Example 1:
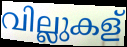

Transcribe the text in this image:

വില്ലുകള്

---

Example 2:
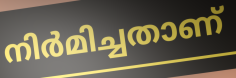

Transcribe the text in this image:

നിർമിച്ചതാണ്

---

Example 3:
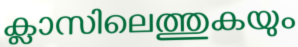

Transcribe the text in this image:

ക്ലാസിലെത്തുകയും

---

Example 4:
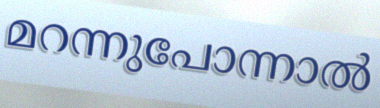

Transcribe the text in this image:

മറന്നുപോന്നാൽ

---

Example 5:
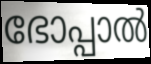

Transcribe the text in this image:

ഭോപ്പാൽ